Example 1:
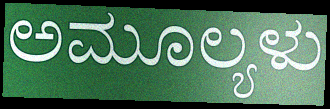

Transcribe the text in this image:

ಅಮೂಲ್ಯಳು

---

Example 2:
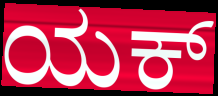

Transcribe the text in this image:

ಯಕ್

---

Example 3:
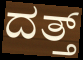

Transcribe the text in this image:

ದತ್ತ್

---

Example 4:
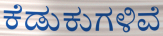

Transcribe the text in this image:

ಕೆಡುಕುಗಳಿವೆ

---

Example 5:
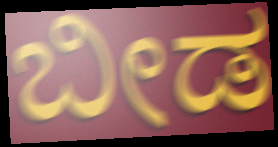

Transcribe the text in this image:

ಬೀಡ